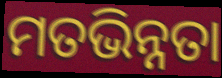
ମତଭିନ୍ନତା